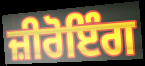
ਜ਼ੀਰੋਇੰਗ